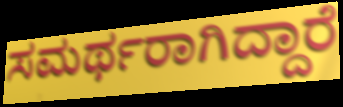
ಸಮರ್ಥರಾಗಿದ್ದಾರೆ